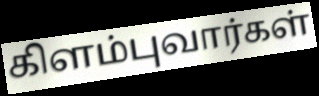
கிளம்புவார்கள்